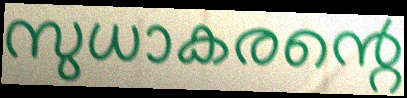
സുധാകരന്റെ